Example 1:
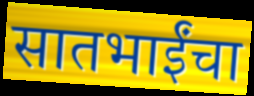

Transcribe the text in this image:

सातभाईंचा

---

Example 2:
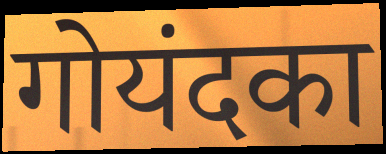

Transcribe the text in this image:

गोयंदका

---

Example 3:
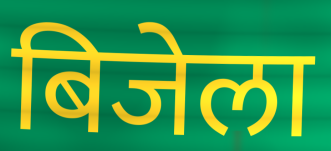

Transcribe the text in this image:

बिजेला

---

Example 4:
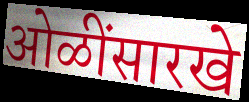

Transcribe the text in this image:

ओळींसारखे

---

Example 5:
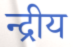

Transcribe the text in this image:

न्द्रीय